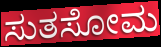
ಸುತಸೋಮ